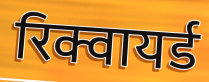
रिक्वायर्ड